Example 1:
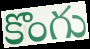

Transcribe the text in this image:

కొంగు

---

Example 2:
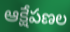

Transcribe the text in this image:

ఆక్షేపణల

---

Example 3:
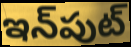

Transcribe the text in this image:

ఇన్‌పుట్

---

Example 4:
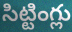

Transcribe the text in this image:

సిట్టింగ్లు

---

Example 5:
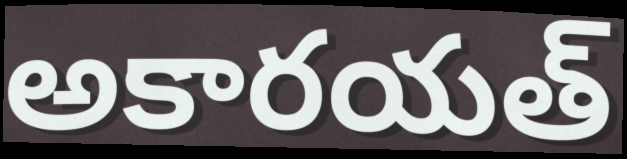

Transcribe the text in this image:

అకారయత్